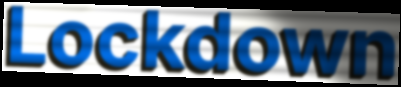
Lockdown